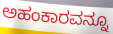
ಅಹಂಕಾರವನ್ನೂ